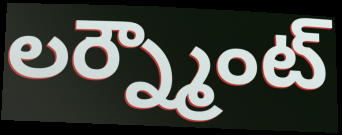
లర్న్మౌంట్